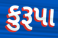
કુરૂપા